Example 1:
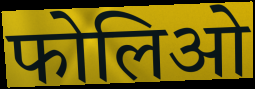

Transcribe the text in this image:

फोलिओ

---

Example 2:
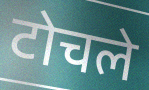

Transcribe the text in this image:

टोचले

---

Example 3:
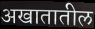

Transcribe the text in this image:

अखातातील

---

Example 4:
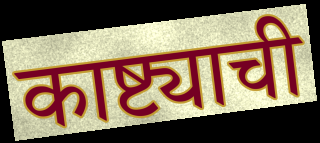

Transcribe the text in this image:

काष्ट्याची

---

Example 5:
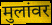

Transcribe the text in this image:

मुलांवर